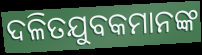
ଦଳିତଯୁବକମାନଙ୍କ